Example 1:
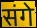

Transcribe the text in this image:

संगे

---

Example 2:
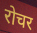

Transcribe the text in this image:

रोचर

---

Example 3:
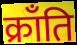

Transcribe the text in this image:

क्राँति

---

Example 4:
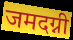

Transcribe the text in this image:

जमदग्नी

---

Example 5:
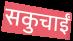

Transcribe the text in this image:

सकुचाईं